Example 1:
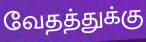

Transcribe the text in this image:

வேதத்துக்கு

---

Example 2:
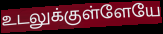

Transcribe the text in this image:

உடலுக்குள்ளேயே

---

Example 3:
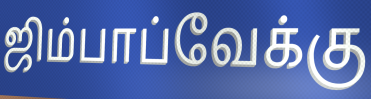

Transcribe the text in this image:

ஜிம்பாப்வேக்கு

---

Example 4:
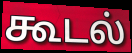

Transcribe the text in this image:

கூடல்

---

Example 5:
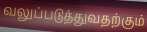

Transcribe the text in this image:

வலுப்படுத்துவதற்கும்